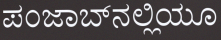
ಪಂಜಾಬ್‌ನಲ್ಲಿಯೂ